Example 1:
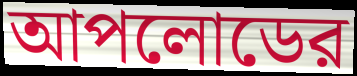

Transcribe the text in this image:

আপলোডের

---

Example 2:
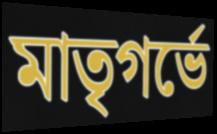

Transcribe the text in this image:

মাতৃগর্ভে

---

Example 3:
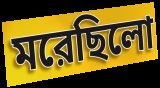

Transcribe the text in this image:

মরেছিলো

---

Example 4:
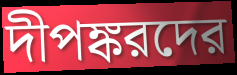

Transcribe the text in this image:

দীপঙ্করদের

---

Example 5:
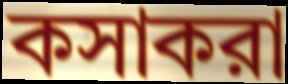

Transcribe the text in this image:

কসাকরা